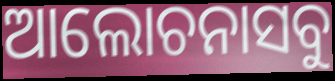
ଆଲୋଚନାସବୁ